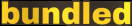
bundled